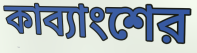
কাব্যাংশের